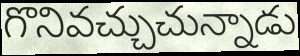
గొనివచ్చుచున్నాడు